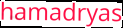
hamadryas